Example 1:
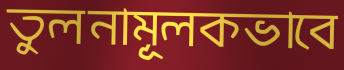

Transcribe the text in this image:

তুলনামূলকভাবে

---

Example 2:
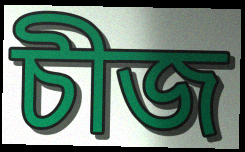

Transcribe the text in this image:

চীজ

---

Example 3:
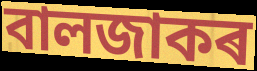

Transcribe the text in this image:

বালজাকৰ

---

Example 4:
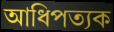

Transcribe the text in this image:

আধিপত্যক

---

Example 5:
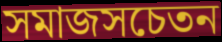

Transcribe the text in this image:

সমাজসচেতন